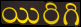
యిరిగి